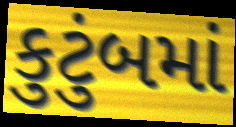
કુટુંબમાં